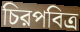
চিরপবিত্র